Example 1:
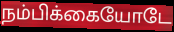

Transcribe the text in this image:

நம்பிக்கையோடே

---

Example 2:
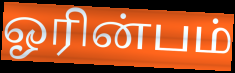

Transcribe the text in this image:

ஓரின்பம்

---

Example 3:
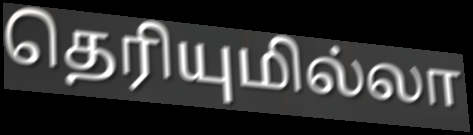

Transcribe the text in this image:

தெரியுமில்லா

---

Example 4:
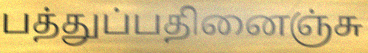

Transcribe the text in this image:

பத்துப்பதினைஞ்சு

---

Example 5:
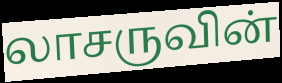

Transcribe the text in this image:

லாசருவின்